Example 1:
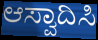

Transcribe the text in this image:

ಆಸ್ವಾದಿಸಿ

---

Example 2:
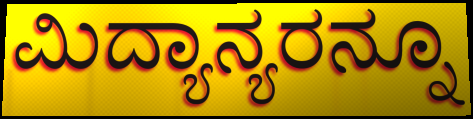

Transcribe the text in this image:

ಮಿದ್ಯಾನ್ಯರನ್ನೂ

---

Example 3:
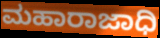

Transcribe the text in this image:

ಮಹಾರಾಜಾಧಿ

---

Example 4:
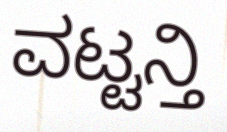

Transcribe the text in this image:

ವಟ್ಟನ್ತಿ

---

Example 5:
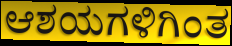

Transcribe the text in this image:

ಆಶಯಗಳಿಗಿಂತ